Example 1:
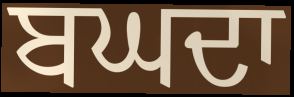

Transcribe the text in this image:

ਬਘਦਾ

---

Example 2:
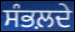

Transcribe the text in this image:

ਸੰਭਲ਼ਦੇ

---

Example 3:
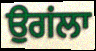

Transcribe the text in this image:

ਉਗਂਲਾ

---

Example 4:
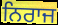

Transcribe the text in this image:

ਨਿਰਾਜ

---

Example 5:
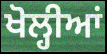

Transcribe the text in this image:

ਖੋਲ੍ਹੀਆਂ